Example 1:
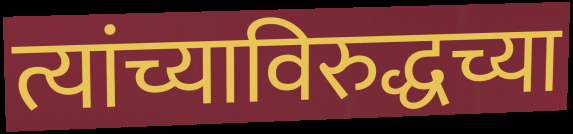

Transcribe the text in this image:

त्यांच्याविरुद्धच्या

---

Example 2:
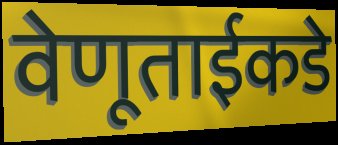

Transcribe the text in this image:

वेणूताईकडे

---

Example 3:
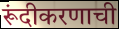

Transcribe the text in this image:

रूंदीकरणाची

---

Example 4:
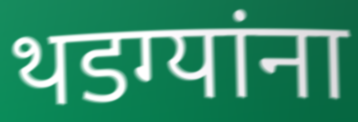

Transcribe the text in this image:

थडग्यांना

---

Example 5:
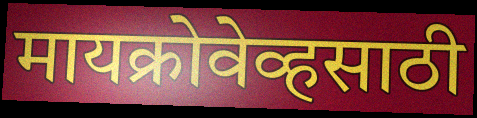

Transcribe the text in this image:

मायक्रोवेव्हसाठी